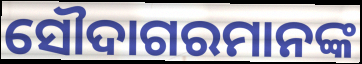
ସୌଦାଗରମାନଙ୍କ